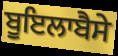
ਬੂਇਲਾਬੈਸੇ